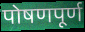
पोषणपूर्ण